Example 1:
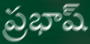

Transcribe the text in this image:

ప్రభాష్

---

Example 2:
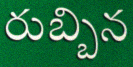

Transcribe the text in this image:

రుబ్బిన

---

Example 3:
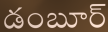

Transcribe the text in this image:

డంబూర్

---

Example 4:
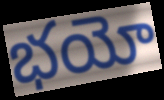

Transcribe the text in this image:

భయో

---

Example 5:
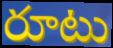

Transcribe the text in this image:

రూటు